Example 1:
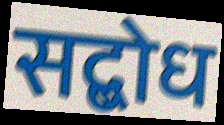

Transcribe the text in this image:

सद्बोध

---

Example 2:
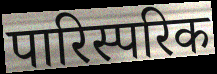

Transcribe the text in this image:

पारिस्परिक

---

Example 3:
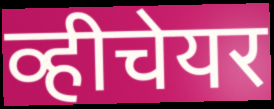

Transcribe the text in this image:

व्हीचेयर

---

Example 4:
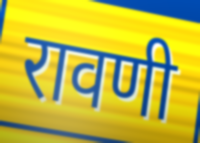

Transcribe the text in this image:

रावणी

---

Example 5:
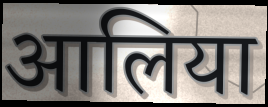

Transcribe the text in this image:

आलिया